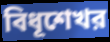
বিধূশেখর